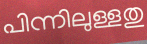
പിന്നിലുള്ളതു